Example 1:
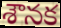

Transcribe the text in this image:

శౌనక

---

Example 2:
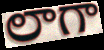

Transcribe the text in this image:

లాగా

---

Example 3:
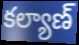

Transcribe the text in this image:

కల్యాణ్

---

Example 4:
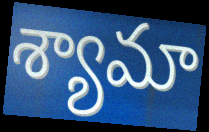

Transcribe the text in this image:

శ్యామా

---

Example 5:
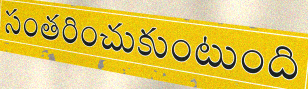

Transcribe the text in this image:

సంతరించుకుంటుంది